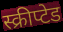
स्क्रीप्टेड